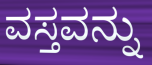
ವಸ್ತವನ್ನು